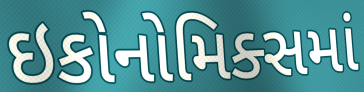
ઇકોનોમિક્સમાં